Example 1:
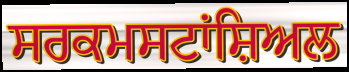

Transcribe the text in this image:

ਸਰਕਮਸਟਾਂਸ਼ਿਅਲ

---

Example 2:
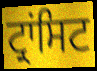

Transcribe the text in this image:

ਟ੍ਰਾਂਸਿਟ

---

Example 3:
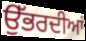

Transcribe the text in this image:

ਉੱਭਰਦੀਆਂ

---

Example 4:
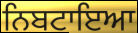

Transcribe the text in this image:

ਨਿਬਟਾਇਆ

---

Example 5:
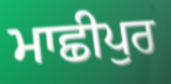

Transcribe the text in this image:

ਮਾਛੀਪੁਰ